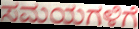
ಸಮಯಗಳಿಗೆ